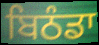
ਬਿਠੰਡਾ